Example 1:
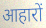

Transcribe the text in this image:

आहारों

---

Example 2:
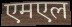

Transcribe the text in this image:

एमएल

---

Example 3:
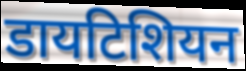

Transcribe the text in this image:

डायटिशियन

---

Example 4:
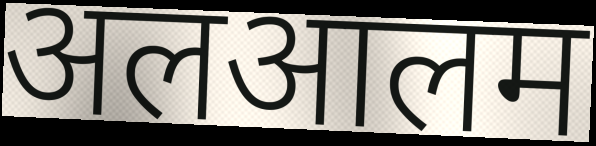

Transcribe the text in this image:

अलआलम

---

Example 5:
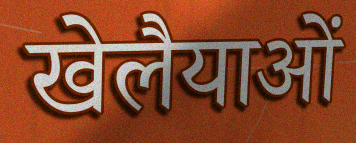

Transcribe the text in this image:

खेलैयाओं